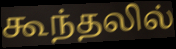
கூந்தலில்